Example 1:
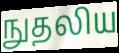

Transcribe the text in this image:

நுதலிய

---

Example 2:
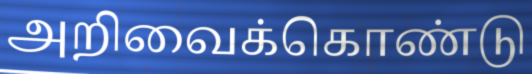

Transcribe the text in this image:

அறிவைக்கொண்டு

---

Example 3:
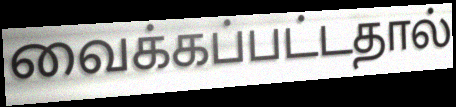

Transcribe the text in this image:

வைக்கப்பட்டதால்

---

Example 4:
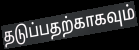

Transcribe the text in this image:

தடுப்பதற்காகவும்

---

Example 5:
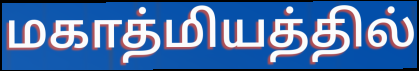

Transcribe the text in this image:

மகாத்மியத்தில்